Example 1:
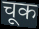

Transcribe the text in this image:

चूक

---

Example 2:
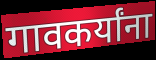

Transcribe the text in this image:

गावकर्यांना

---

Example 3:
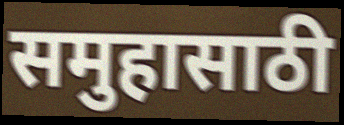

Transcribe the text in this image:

समुहासाठी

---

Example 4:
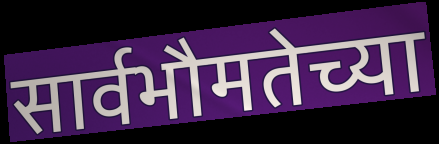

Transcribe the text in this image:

सार्वभौमतेच्या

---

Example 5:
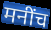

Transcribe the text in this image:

मनींच